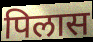
पिलास